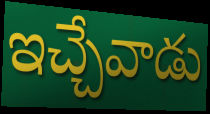
ఇచ్చేవాడు